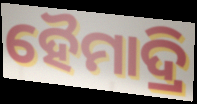
ହୈମାଦ୍ରି